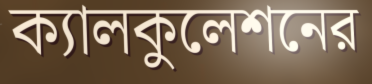
ক্যালকুলেশনের